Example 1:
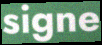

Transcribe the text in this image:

signe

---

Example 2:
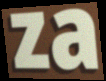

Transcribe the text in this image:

za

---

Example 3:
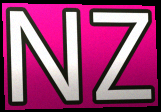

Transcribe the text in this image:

NZ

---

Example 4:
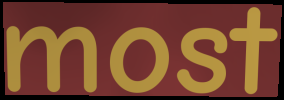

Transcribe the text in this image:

most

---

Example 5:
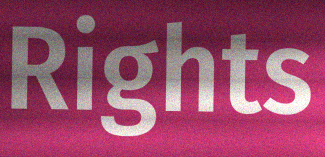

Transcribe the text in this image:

Rights